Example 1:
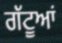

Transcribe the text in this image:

ਗੱਟੂਆਂ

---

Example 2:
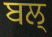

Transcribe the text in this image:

ਬਲ੍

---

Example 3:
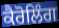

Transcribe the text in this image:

ਕੈਰੋਲਿੰਗ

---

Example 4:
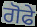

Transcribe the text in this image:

ਗੋਫੇ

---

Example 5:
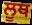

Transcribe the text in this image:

ਲੂਥ